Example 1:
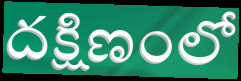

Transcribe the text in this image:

దక్షిణంలో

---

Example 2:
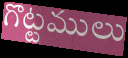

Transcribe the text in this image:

గొట్టములు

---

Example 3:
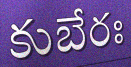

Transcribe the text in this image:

కుబేరః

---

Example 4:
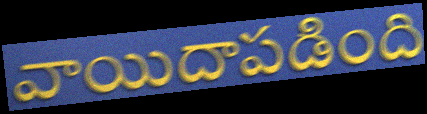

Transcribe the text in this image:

వాయిదాపడింది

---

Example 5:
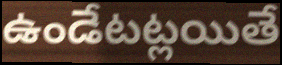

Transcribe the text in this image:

ఉండేటట్లయితే